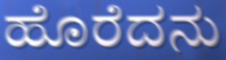
ಹೊರೆದನು